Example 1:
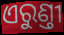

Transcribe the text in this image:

ଏରୁଣ୍ତୀ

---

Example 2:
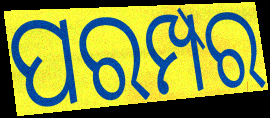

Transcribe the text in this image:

ପରମ୍ପର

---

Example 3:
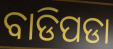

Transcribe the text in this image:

ବାଡିପଡା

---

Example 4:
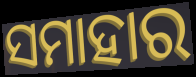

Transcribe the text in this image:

ସମାହାର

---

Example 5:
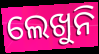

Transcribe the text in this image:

ଲେଖୁନି